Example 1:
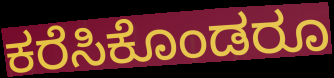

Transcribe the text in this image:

ಕರೆಸಿಕೊಂಡರೂ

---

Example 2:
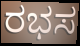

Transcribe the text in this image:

ರಭಸ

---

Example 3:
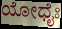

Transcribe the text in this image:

ಯೋಧೈಃ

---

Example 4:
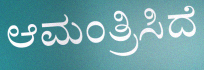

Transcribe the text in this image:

ಆಮಂತ್ರಿಸಿದೆ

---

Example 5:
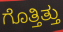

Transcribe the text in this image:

ಗೊತ್ತಿತ್ತು